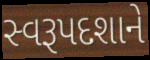
સ્વરૂપદશાને